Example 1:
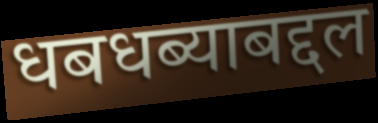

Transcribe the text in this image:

धबधब्याबद्दल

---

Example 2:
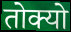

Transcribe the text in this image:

तोक्यो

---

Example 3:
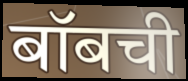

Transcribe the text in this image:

बॉबची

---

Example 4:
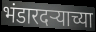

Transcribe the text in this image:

भंडारदर्‍याच्या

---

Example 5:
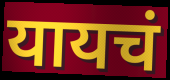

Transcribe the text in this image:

यायचं